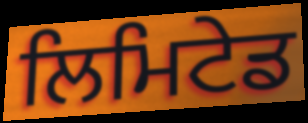
ਲਿਮਿਟੇਡ